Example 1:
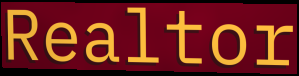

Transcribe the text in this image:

Realtor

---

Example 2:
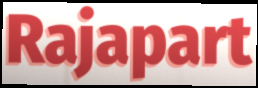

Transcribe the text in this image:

Rajapart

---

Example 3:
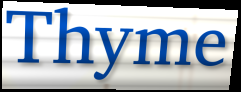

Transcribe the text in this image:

Thyme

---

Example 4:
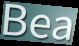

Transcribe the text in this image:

Bea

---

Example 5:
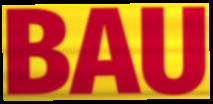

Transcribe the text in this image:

BAU